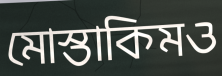
মোস্তাকিমও